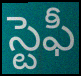
స్టెఫీ